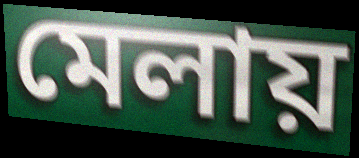
মেলায়